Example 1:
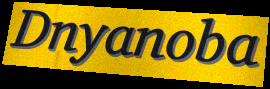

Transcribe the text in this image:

Dnyanoba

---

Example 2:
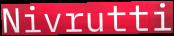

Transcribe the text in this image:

Nivrutti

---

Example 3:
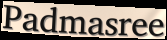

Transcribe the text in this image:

Padmasree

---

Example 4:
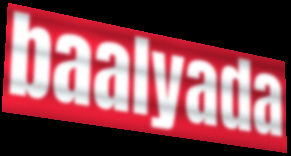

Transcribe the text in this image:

baalyada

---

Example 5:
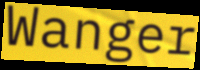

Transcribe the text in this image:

Wanger